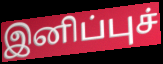
இனிப்புச்